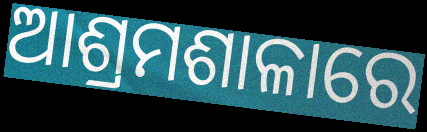
ଆଶ୍ରମଶାଳାରେ